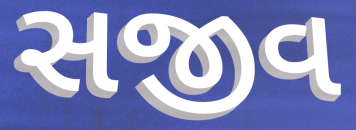
સજીવ